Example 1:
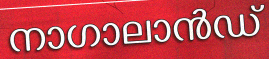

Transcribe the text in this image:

നാഗാലാൻഡ്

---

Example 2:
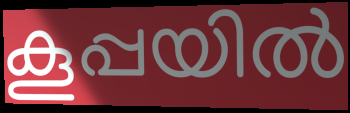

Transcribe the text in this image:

കൂപ്പയിൽ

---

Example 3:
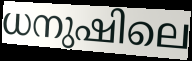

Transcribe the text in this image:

ധനുഷിലെ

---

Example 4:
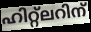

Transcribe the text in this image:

ഹിറ്റ്ലറിന്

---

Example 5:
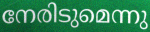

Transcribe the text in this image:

നേരിടുമെന്നു